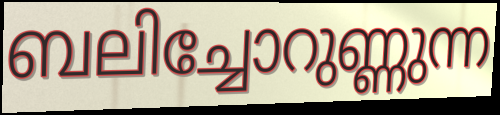
ബലിച്ചോറുണ്ണുന്ന